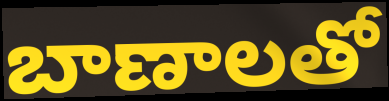
బాణాలతో